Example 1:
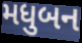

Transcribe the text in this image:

મધુબન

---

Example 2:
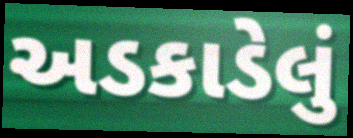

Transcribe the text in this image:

અડકાડેલું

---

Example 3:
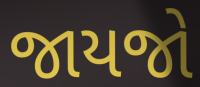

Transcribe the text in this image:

જાયજો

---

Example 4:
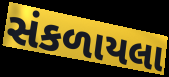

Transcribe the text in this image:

સંકળાયલા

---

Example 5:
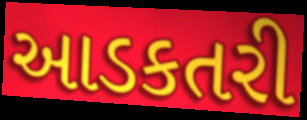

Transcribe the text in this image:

આડકતરી